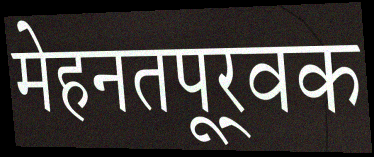
मेहनतपूर्वक